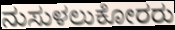
ನುಸುಳಲುಕೋರರು